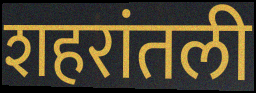
शहरांतली